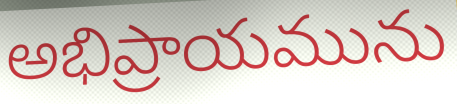
అభిప్రాయమును